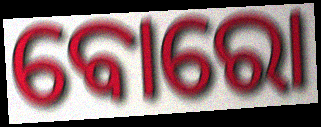
ବୋରୋ